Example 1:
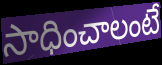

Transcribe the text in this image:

సాధించాలంటే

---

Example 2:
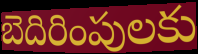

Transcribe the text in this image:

బెదిరింపులకు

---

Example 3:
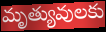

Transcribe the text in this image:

మృత్యువులకు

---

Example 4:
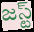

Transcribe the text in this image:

జస్ట్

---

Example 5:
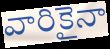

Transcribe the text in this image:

వారికైనా